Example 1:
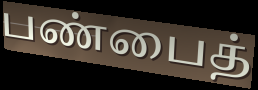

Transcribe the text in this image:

பண்பைத்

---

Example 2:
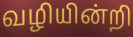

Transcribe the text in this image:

வழியின்றி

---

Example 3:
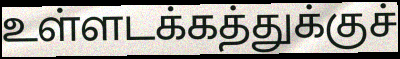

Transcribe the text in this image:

உள்ளடக்கத்துக்குச்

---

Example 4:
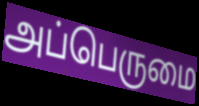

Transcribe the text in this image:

அப்பெருமை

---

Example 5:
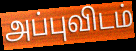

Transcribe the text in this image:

அப்புவிடம்